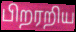
பிறரறிய